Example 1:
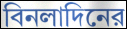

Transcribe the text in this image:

বিনলাদিনের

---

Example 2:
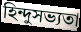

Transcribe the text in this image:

হিন্দুসভ্যতা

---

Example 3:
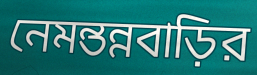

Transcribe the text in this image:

নেমন্তন্নবাড়ির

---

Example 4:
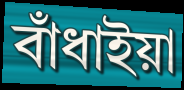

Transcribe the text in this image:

বাঁধাইয়া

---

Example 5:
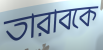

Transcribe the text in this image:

তারাবকে